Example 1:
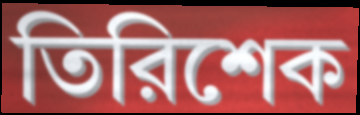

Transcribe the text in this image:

তিরিশেক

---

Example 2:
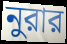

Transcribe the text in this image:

নুরার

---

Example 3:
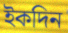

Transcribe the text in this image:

ইকদিন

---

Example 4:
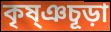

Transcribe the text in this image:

কৃষ্ঞচূড়া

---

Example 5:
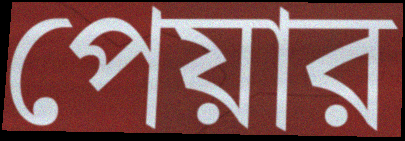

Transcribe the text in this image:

পেয়ার